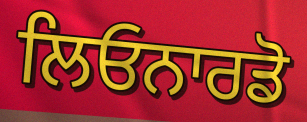
ਲਿਓਨਾਰਡੋ